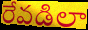
రేవడిలా